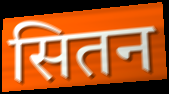
सितन